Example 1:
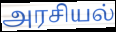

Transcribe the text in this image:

அரசியல்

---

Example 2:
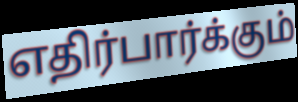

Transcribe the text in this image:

எதிர்பார்க்கும்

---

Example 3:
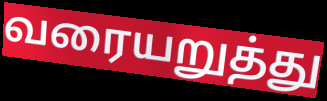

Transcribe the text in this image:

வரையறுத்து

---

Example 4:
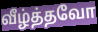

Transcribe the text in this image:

வீழ்த்தவோ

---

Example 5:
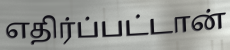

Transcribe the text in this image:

எதிர்ப்பட்டான்